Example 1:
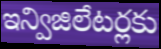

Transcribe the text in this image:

ఇన్విజిలేటర్లకు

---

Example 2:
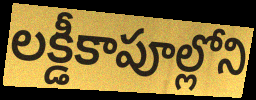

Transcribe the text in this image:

లక్డీకాపూల్లోని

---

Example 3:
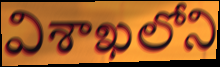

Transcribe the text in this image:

విశాఖలోని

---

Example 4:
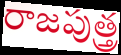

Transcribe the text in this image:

రాజపుత్త్ర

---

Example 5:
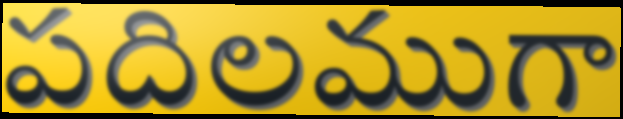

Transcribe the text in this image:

పదిలముగా